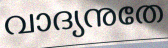
വാദ്യനുതേ